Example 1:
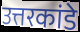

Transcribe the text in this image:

उत्तरकांडे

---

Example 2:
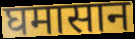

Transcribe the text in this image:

घमासान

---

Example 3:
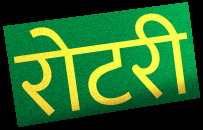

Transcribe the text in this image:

रोटरी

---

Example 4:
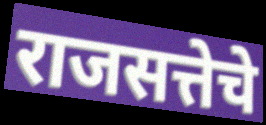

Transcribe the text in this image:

राजसत्तेचे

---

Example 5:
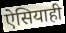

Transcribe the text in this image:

ऐसियाही